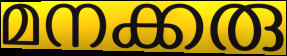
മനക്കരു